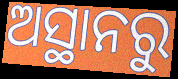
ଅସ୍ଥାନରୁ